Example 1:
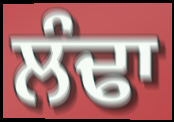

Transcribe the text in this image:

ਲੰਢਾ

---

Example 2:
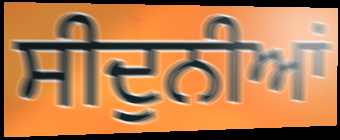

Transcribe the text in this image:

ਸੀਦੁਨੀਆਂ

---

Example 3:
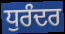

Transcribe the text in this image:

ਧੁਰੰਦਰ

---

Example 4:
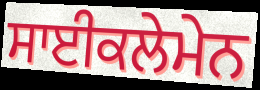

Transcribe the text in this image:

ਸਾਈਕਲੇਮੇਨ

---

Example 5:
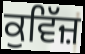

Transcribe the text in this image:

ਕੁਵਿੱਜ਼